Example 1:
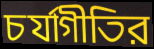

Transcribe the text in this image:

চর্যাগীতির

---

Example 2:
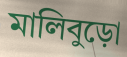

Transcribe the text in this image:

মালিবুড়ো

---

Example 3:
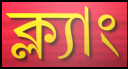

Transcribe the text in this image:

ক্ল্যাং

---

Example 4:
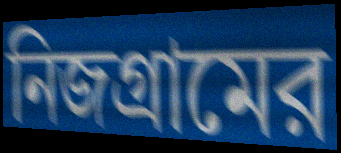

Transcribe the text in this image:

নিজগ্রামের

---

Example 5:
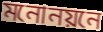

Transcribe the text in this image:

মনোনয়নে